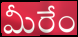
మీరేం